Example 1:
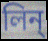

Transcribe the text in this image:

লিন্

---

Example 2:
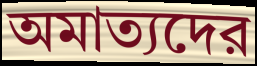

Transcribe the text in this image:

অমাত্যদের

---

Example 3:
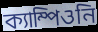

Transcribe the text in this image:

ক্যাম্পিওনি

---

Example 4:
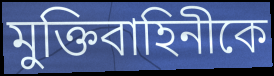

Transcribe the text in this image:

মুক্তিবাহিনীকে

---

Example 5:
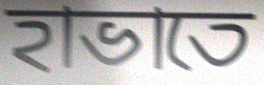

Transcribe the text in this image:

হাভাতে